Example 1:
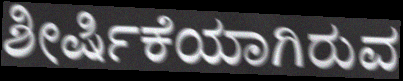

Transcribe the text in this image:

ಶೀರ್ಷಿಕೆಯಾಗಿರುವ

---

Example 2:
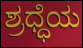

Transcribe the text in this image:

ಶ್ರಧ್ಧೆಯ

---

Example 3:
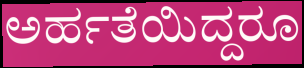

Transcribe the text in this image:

ಅರ್ಹತೆಯಿದ್ದರೂ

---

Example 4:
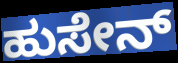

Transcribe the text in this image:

ಹುಸೇನ್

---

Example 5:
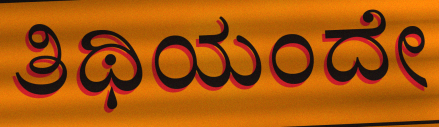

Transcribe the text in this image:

ತಿಥಿಯಂದೇ